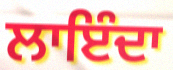
ਲਾਇੰਦਾ